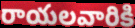
రాయలవారికి